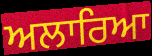
ਅਲਾਰਿਆ